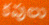
కవులు